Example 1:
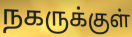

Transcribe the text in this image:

நகருக்குள்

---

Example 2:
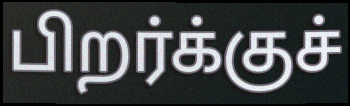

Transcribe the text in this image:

பிறர்க்குச்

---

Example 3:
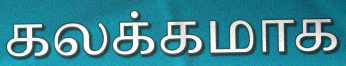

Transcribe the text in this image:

கலக்கமாக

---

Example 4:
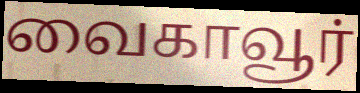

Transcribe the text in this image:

வைகாவூர்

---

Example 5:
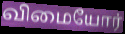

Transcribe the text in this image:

விமையோர்